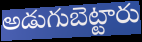
అడుగుబెట్టారు